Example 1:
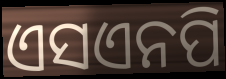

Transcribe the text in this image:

ଏସଏନପି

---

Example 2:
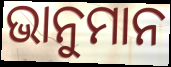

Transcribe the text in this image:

ଭାନୁମାନ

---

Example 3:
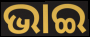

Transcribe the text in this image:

ଭାଇ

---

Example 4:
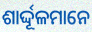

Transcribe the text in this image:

ଶାର୍ଦ୍ଦୂଳମାନେ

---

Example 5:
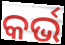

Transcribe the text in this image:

କର୍ଭ